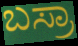
ಬಸ್ರಾ